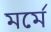
মৰ্মে